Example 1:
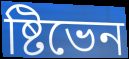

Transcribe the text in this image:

ষ্টিভেন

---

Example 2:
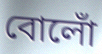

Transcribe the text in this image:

বোলোঁ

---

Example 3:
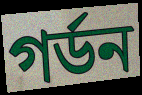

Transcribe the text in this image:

গৰ্ডন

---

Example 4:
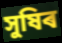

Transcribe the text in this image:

সুষিৰ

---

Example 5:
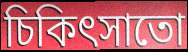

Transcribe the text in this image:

চিকিৎসাতো